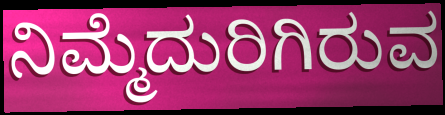
ನಿಮ್ಮೆದುರಿಗಿರುವ